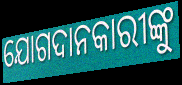
ଯୋଗଦାନକାରୀଙ୍କୁ